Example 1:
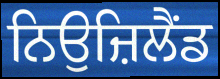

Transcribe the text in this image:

ਨਿਉਜ਼ਿਲੈਂਡ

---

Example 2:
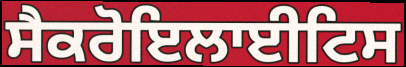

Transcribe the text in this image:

ਸੈਕਰੋਇਲਾਈਟਿਸ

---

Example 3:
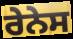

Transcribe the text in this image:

ਰੇਨੇਸ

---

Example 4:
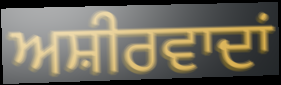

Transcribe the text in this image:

ਅਸ਼ੀਰਵਾਦਾਂ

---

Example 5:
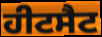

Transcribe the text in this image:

ਹੀਟਸੈਟ